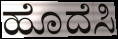
ಹೊದೆಸಿ